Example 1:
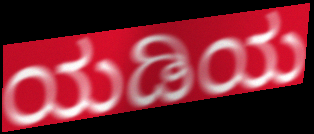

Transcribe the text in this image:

ಯಡಿಯ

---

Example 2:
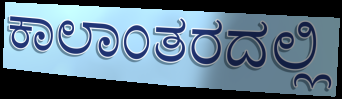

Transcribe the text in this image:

ಕಾಲಾಂತರದಲ್ಲಿ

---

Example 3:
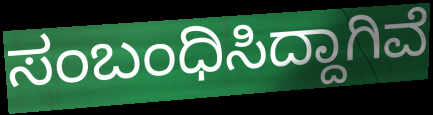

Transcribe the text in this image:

ಸಂಬಂಧಿಸಿದ್ದಾಗಿವೆ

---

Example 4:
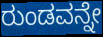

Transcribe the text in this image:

ರುಂಡವನ್ನೇ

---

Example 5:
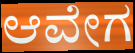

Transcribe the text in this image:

ಆವೇಗ